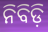
ନିବିଡ଼ି